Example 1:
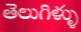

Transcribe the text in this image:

తెలుగిళ్ళు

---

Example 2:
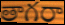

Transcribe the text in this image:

తాగరా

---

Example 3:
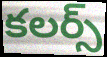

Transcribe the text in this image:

కలర్స్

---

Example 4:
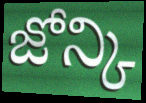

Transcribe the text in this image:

జోన్కి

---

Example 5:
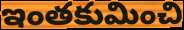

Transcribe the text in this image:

ఇంతకుమించి